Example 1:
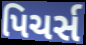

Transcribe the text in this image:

પિચર્સ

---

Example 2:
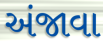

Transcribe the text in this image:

અંજાવા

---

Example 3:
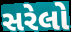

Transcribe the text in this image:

સરેલો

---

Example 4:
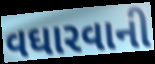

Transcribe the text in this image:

વઘારવાની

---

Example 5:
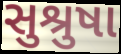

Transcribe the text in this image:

સુશ્રુષા